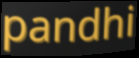
pandhi